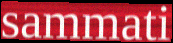
sammati